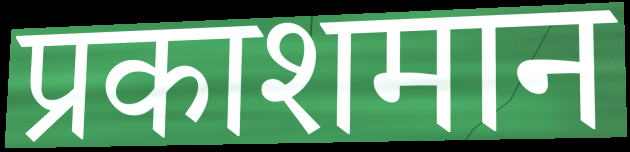
प्रकाशमान